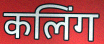
कलिंग